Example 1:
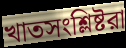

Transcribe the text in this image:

খাতসংশ্লিষ্টরা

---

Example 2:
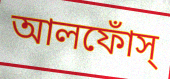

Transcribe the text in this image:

আলফোঁস্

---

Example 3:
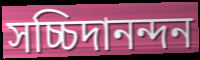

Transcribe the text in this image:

সচ্চিদানন্দন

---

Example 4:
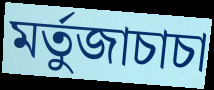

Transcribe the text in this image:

মর্তুজাচাচা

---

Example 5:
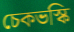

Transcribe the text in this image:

চেকভস্কি